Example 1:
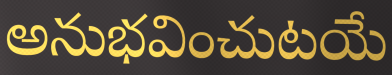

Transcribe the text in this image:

అనుభవించుటయే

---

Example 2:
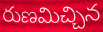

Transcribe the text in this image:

రుణమిచ్చిన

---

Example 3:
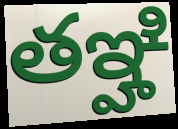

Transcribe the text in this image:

తఞ్హి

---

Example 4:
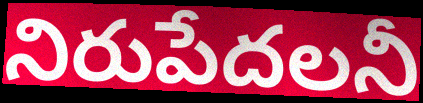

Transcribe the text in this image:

నిరుపేదలనీ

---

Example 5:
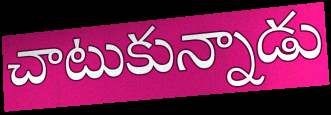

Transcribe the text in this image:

చాటుకున్నాడు